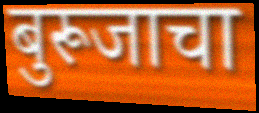
बुरूजाचा